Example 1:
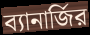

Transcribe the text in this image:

ব্যানার্জির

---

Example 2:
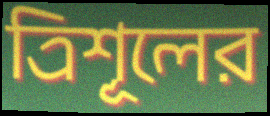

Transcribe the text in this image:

ত্রিশূলের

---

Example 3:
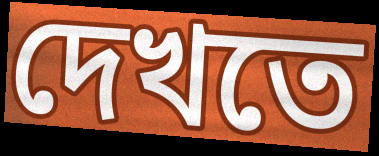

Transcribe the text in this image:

দেখতে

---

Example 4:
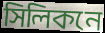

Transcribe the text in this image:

সিলিকনে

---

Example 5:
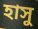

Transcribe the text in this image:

হাসু